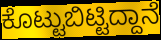
ಕೊಟ್ಟುಬಿಟ್ಟಿದ್ದಾನೆ